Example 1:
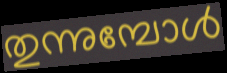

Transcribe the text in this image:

തുന്നുമ്പോൾ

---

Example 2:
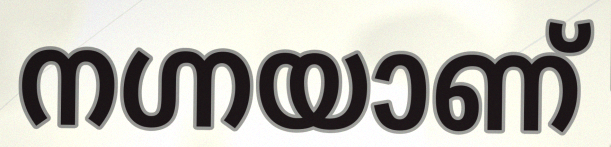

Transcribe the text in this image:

നഗ്നയാണ്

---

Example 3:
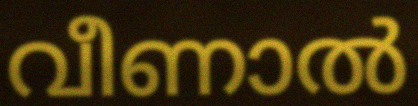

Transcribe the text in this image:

വീണാൽ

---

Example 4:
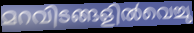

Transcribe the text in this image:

മറവിടങ്ങളിൽവെച്ചു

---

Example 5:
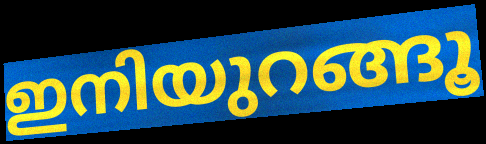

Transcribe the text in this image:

ഇനിയുറങ്ങൂ